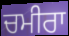
ਚਮੀਰਾ